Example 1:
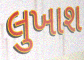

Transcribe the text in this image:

લુખાશ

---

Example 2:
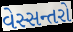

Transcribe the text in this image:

વેસ્સન્તરો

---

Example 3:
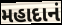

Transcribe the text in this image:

મહાદાનં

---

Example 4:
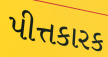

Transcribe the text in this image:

પીત્તકારક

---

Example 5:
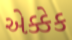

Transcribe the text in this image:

એક્કેક